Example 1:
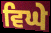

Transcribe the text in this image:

ਵਿਘੇ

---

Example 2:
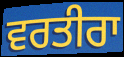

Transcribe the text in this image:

ਵਰਤੀਰਾ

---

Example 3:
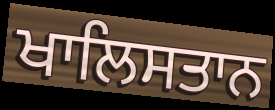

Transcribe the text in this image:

ਖਾਲਿਸਤਾਨ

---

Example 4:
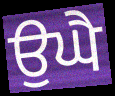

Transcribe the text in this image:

ਉਘੈ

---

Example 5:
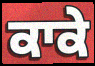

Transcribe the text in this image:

ਕਾਕੇ